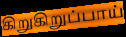
கிறுகிறுப்பாய்